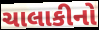
ચાલાકીનો